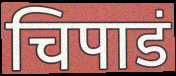
चिपाडं